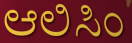
ಆಲಿಸಿಂ